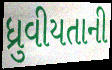
ધ્રુવીયતાની